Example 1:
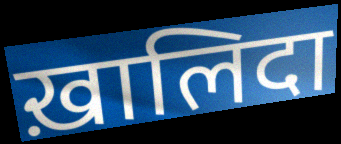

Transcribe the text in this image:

ख़ालिदा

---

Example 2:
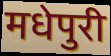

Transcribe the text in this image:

मधेपुरी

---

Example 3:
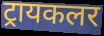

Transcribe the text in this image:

ट्रायकलर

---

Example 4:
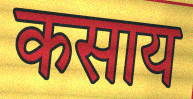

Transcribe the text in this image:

कसाय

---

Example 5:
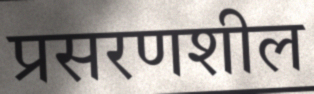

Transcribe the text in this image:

प्रसरणशील